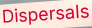
Dispersals